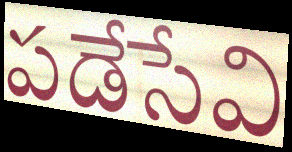
పడేసేవి